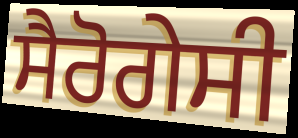
ਸੈਰੋਗੇਸੀ